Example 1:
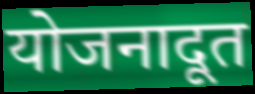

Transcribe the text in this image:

योजनादूत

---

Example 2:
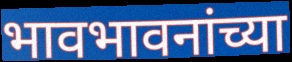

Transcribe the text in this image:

भावभावनांच्या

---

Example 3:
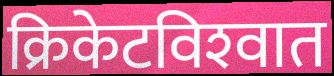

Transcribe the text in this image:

क्रिकेटविश्‍वात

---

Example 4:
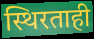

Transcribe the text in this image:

स्थिरताही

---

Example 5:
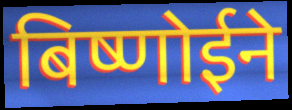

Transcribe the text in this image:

बिष्णोईने